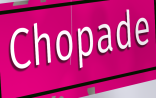
Chopade